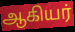
ஆகியர்